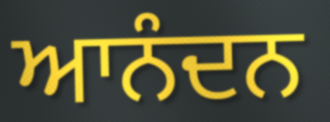
ਆਨੰਦਨ